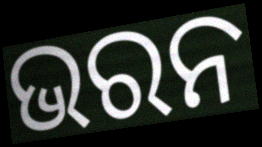
ଭରନ